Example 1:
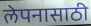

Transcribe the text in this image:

लेपनासाठी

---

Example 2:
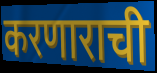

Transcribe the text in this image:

करणाराची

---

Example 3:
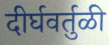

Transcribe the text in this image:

दीर्घवर्तुळी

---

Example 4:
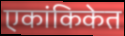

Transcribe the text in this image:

एकांकिकेत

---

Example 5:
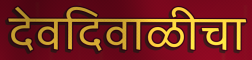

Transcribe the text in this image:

देवदिवाळीचा